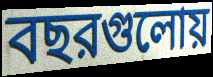
বছরগুলোয়